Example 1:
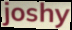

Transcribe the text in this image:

joshy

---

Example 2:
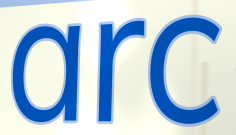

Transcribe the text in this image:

arc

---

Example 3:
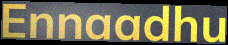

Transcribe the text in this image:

Ennaadhu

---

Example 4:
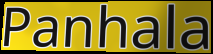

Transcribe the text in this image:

Panhala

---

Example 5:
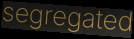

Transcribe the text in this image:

segregated